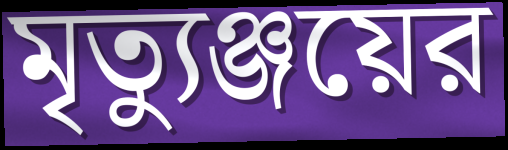
মৃত্যুঞ্জয়ের